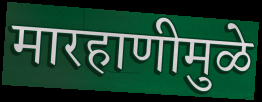
मारहाणीमुळे